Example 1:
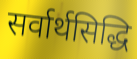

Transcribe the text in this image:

सर्वार्थसिद्धि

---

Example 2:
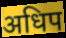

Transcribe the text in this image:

अधिप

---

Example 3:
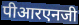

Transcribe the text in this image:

पीआरएनजी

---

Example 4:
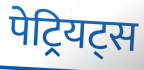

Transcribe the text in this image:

पेट्रियट्स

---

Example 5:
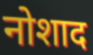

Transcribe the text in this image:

नोशाद